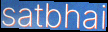
satbhai